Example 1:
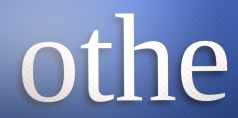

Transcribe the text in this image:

othe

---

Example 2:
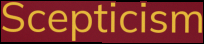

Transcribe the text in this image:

Scepticism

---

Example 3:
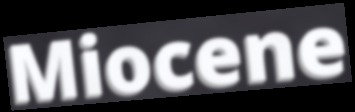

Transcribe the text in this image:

Miocene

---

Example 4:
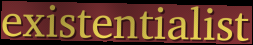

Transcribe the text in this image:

existentialist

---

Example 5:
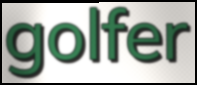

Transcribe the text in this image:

golfer